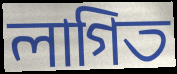
লাগিত